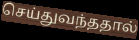
செய்துவந்ததால்